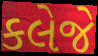
કલેજે